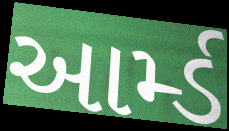
આર્મ્ડ